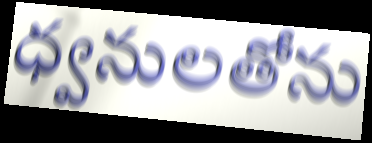
ధ్వనులతోను